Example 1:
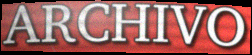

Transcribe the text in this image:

ARCHIVO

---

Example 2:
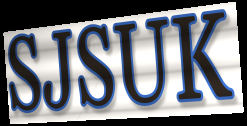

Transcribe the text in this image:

SJSUK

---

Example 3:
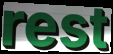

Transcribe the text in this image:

rest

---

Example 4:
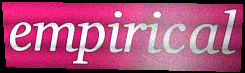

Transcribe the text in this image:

empirical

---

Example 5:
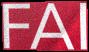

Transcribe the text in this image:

FAI